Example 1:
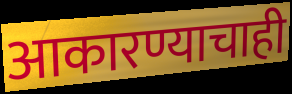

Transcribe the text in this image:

आकारण्याचाही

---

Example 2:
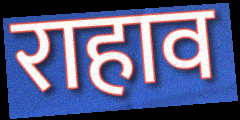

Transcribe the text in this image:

राहाव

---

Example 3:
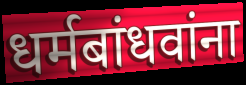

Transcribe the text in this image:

धर्मबांधवांना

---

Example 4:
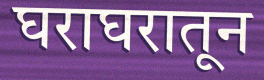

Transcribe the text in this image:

घराघरातून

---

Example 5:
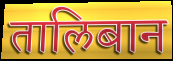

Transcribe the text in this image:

तालिबान